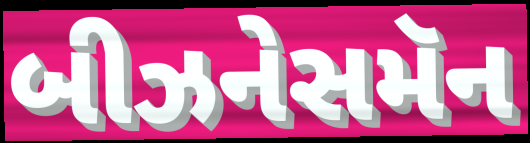
બીઝનેસમૅન